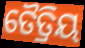
ତୈତ୍ରିୟ